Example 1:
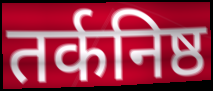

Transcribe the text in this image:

तर्कनिष्ठ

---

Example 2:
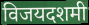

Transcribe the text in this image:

विजयदशमी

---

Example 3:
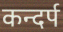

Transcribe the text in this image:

कन्दर्प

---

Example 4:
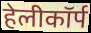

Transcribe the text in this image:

हेलीकॉर्प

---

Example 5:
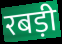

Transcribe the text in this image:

रबड़ी